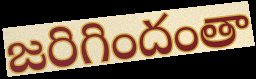
జరిగిందంతా